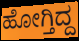
ಹೋಗ್ತಿದ್ದ